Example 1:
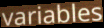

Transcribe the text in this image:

variables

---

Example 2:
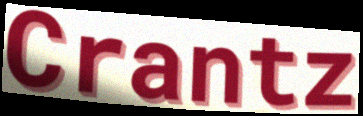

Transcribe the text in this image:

Crantz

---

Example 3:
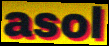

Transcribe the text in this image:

asol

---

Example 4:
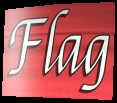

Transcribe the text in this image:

Flag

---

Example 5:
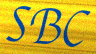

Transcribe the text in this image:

SBC